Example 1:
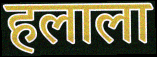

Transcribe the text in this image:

हलाला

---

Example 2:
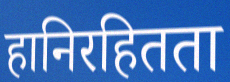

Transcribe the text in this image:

हानिरहितता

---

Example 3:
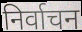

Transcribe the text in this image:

निर्वाचन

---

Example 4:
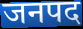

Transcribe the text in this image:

जनपद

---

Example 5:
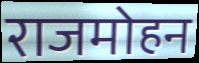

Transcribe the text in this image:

राजमोहन